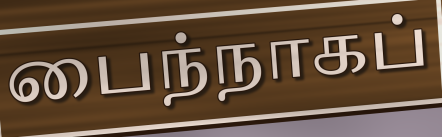
பைந்நாகப்